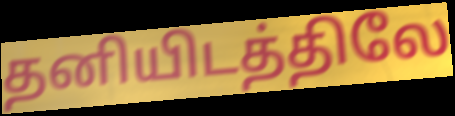
தனியிடத்திலே